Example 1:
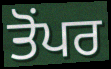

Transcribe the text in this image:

ਤੋਂਪਰ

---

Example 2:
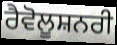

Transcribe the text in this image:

ਰੈਵੋਲੂਸ਼ਨਰੀ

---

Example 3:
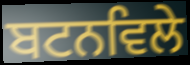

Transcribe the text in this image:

ਬਟਨਵਿਲੇ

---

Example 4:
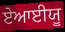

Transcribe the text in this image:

ਏਆਈਯੂ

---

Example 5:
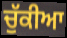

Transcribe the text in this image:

ਚੁੱਕੀਆ